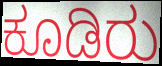
ಕೂಡಿರು